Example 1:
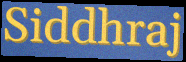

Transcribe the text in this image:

Siddhraj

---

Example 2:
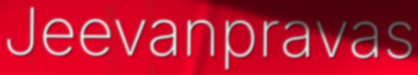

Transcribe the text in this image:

Jeevanpravas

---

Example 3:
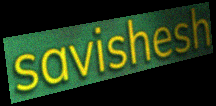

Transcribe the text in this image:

savishesh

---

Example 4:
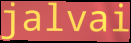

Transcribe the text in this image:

jalvai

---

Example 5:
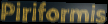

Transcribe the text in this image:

Piriformis